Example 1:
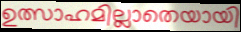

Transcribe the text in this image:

ഉത്സാഹമില്ലാതെയായി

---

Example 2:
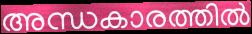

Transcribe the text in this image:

അന്ധകാരത്തിൽ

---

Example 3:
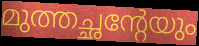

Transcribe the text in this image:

മുത്തച്ഛന്റേയും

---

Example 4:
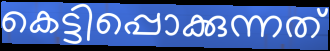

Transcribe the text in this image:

കെട്ടിപ്പൊക്കുന്നത്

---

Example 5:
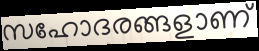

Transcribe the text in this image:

സഹോദരങ്ങളാണ്